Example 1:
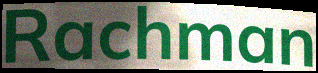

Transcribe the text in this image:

Rachman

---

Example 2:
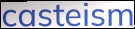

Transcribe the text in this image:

casteism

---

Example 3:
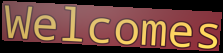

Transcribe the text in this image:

Welcomes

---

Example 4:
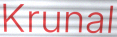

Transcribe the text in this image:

Krunal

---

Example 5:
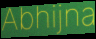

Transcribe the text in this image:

Abhijna